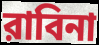
রাবিনা